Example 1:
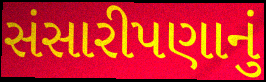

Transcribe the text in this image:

સંસારીપણાનું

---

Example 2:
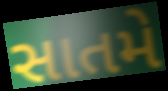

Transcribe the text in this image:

સાતમે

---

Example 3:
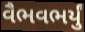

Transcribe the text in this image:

વૈભવભર્યું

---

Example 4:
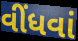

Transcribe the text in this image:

વીંધવાં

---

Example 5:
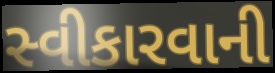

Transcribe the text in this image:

સ્વીકારવાની